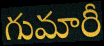
గుమారీ